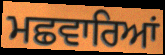
ਮਛਵਾਰਿਆਂ